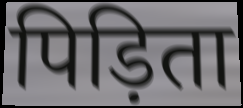
पिड़िता